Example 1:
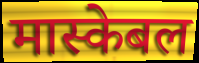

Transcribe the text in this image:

मास्केबल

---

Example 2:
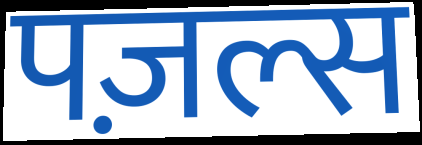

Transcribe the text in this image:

पज़ल्स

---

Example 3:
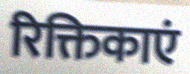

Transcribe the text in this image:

रिक्तिकाएं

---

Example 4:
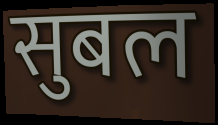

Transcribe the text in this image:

सुबल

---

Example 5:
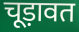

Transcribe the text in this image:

चूड़ावत